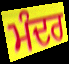
ਮੰਦਰ